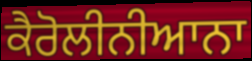
ਕੈਰੋਲੀਨੀਆਨਾ